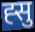
ह्सु